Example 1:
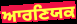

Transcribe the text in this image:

ਆਰਣਿਯਕ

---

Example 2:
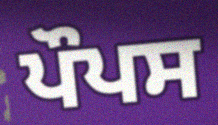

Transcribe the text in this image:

ਪੌਪਸ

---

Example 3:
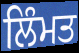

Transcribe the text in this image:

ਲਿੰਮਤ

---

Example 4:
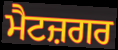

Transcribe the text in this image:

ਮੈਟਜ਼ਗਰ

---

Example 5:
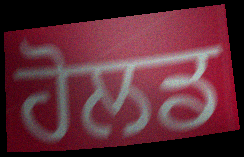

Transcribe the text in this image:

ਹੋਲਡ